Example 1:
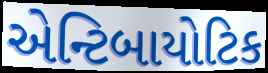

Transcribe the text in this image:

એન્ટિબાયોટિક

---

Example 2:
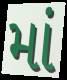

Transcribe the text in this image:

માં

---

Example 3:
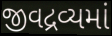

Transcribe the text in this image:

જીવદ્રવ્યમાં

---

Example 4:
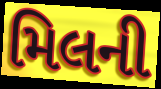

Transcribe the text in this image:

મિલની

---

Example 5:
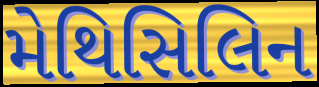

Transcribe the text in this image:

મેથિસિલિન